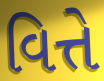
વિત્તે